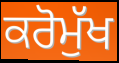
ਕਰੋਮੁੱਖ